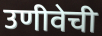
उणीवेची